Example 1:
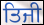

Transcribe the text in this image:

ਤਿਜੀ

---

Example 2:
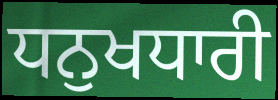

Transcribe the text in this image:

ਧਨੁਖਧਾਰੀ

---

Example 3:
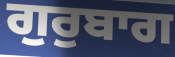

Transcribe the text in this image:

ਗੁਰੁਬਾਗ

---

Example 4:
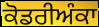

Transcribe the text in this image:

ਕੋਡਰੀਅੰਕਾ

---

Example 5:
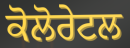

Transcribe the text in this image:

ਕੋਲੋਰੇਟਲ